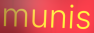
munis